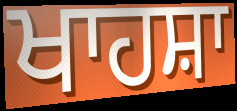
ਖਾਹਸ਼ਾ